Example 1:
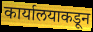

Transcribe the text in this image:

कार्यालयाकडून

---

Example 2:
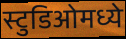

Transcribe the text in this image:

स्टुडिओमध्ये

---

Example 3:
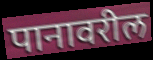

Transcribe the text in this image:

पानावरील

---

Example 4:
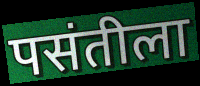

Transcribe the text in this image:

पसंतीला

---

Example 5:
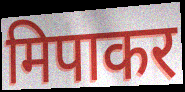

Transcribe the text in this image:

मिपाकर